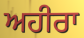
ਅਹੀਰਾ